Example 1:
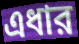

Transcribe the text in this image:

এধার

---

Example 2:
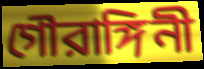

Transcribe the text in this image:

গৌরাঙ্গিনী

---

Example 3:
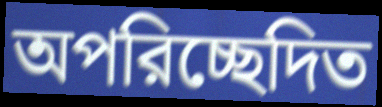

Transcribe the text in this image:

অপরিচ্ছেদিত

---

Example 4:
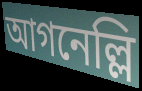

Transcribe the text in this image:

আগনেল্লি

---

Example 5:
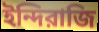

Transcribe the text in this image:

ইন্দিরাজি